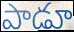
పాడూ